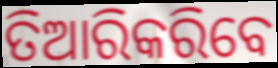
ତିଆରିକରିବେ